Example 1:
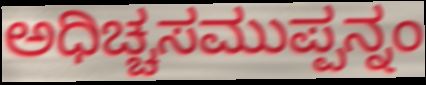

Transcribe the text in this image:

ಅಧಿಚ್ಚಸಮುಪ್ಪನ್ನಂ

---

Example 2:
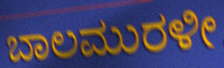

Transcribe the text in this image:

ಬಾಲಮುರಳೀ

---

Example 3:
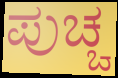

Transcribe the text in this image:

ಪುಚ್ಚ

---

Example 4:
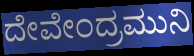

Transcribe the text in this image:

ದೇವೇಂದ್ರಮುನಿ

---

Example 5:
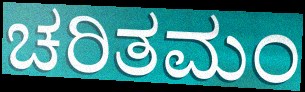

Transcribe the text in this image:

ಚರಿತಮಂ